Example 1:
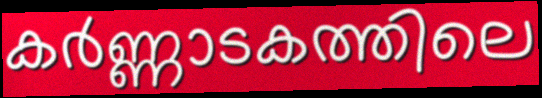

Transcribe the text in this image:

കർണ്ണാടകത്തിലെ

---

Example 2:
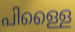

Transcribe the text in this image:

പിള്ളൈ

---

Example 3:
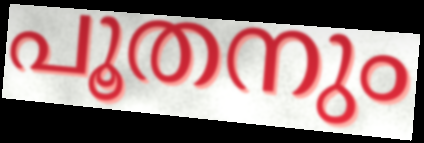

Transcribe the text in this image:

പൂതനും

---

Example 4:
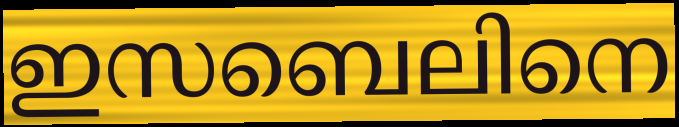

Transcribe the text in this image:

ഇസബെലിനെ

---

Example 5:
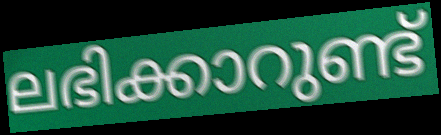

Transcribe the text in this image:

ലഭിക്കാറുണ്ട്